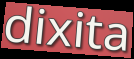
dixita